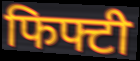
फिफ्टी